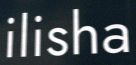
ilisha